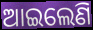
ଆଇଲେଣି